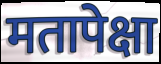
मतापेक्षा